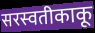
सरस्वतीकाकू